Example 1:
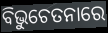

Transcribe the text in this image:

ବିଭୁଚେତନାରେ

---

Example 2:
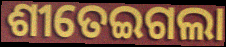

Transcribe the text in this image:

ଶୀତେଇଗଲା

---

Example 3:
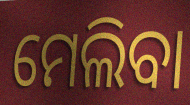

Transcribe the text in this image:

ମେଲିବା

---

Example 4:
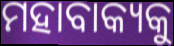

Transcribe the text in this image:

ମହାବାକ୍ୟକୁ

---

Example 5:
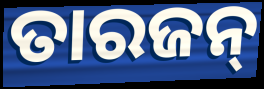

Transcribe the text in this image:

ତାରଜନ୍